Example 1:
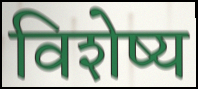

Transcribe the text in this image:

विशेष्य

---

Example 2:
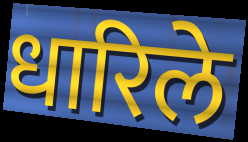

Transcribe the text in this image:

धारिले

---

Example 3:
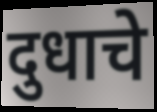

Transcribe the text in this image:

दुधाचे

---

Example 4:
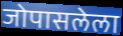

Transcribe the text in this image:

जोपासलेला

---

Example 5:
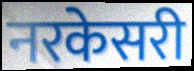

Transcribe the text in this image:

नरकेसरी